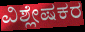
ವಿಶ್ಲೇಷಕರ